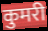
कुमरी